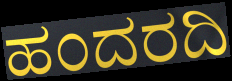
ಹಂದರದಿ